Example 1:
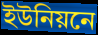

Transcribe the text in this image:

ইউনিয়নে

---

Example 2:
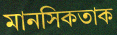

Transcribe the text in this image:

মানসিকতাক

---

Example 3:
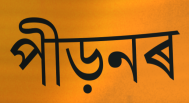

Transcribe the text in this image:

পীড়নৰ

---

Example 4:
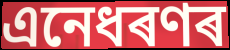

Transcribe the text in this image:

এনেধৰণৰ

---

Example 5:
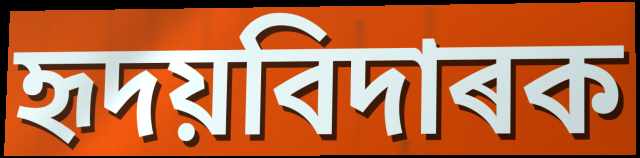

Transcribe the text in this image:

হৃদয়বিদাৰক